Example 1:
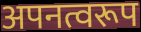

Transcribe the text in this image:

अपनत्वरूप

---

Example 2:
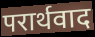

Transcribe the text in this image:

परार्थवाद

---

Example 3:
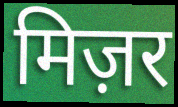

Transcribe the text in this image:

मिज़र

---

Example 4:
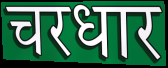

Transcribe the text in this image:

चरधार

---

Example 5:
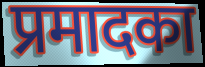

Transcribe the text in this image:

प्रमादका